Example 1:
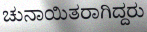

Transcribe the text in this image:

ಚುನಾಯಿತರಾಗಿದ್ದರು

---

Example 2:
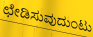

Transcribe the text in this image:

ಛೇಡಿಸುವುದುಂಟು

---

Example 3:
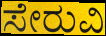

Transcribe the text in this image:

ಸೇರುವಿ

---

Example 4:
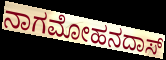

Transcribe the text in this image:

ನಾಗಮೋಹನದಾಸ್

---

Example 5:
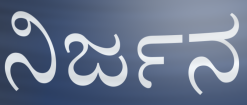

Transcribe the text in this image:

ನಿರ್ಜನ